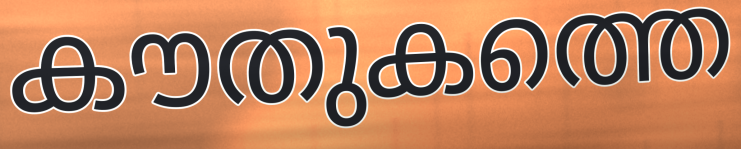
കൗതുകത്തെ